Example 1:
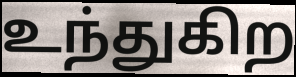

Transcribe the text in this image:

உந்துகிற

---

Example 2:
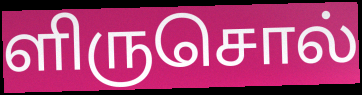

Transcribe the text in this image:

ளிருசொல்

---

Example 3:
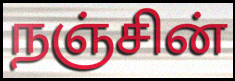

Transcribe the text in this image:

நஞ்சின்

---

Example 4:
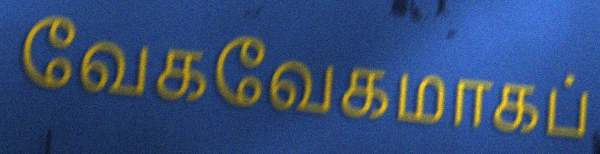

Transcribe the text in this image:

வேகவேகமாகப்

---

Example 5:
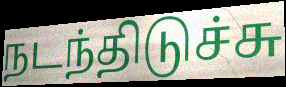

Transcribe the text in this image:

நடந்திடுச்சு